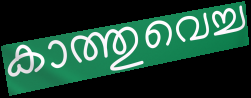
കാത്തുവെച്ച